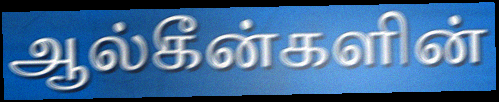
ஆல்கீன்களின்